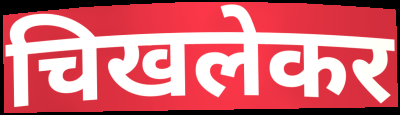
चिखलेकर